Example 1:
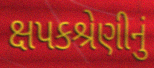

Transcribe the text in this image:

ક્ષપકશ્રેણીનું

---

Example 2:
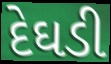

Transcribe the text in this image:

દેઘડી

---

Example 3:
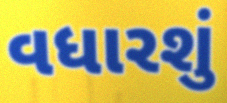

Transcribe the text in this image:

વધારશું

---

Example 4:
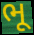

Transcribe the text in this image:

ભૂ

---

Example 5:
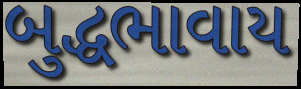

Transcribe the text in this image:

બુદ્ધભાવાય